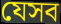
যেসব